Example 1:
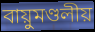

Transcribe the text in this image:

বায়ুমণ্ডলীয়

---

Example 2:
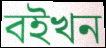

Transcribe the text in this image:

বইখন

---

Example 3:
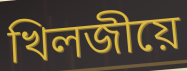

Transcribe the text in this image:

খিলজীয়ে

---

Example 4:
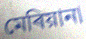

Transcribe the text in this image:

মেৰিয়ানা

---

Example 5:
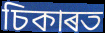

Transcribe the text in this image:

চিকাৰত